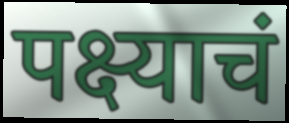
पक्ष्याचं